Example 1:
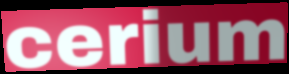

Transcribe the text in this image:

cerium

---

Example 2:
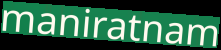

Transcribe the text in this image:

maniratnam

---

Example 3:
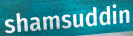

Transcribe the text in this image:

shamsuddin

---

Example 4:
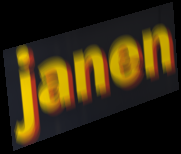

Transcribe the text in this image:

janen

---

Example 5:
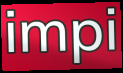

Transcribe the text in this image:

impi